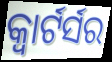
କ୍ବାର୍ଟର୍ସର